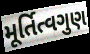
મૂર્તિત્વગુણ